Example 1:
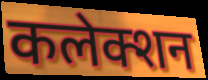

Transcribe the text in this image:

कलेक्शन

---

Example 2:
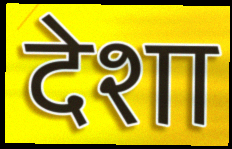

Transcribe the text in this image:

देशा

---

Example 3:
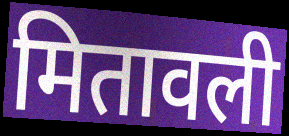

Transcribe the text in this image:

मितावली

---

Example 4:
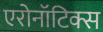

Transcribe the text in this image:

एरोनॉटिक्स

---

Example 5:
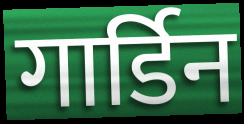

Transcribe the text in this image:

गार्डिन